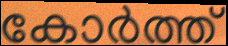
കോർത്ത്